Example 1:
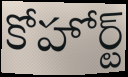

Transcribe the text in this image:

కోహోర్ట్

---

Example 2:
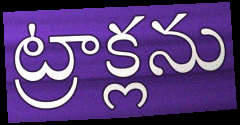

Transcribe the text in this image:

ట్రాక్లను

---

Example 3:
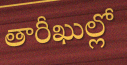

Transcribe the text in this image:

తారీఖుల్లో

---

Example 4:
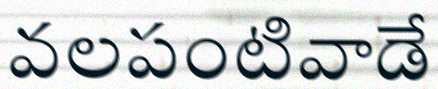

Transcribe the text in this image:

వలపంటివాడే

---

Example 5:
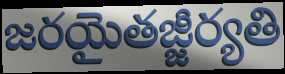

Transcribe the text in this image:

జరయైతజ్జీర్యతి